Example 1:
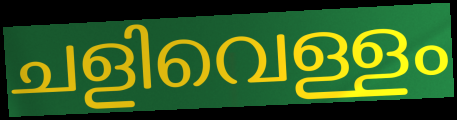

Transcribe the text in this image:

ചളിവെള്ളം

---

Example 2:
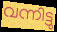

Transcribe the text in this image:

വന്നിട്ടു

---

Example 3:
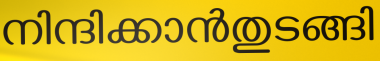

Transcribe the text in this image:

നിന്ദിക്കാൻതുടങ്ങി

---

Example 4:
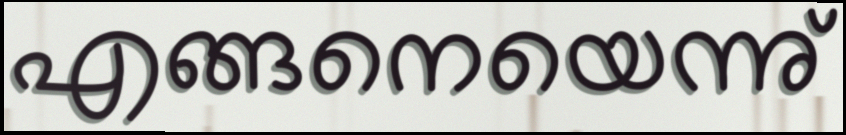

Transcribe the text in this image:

എങ്ങനെയെന്നു്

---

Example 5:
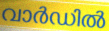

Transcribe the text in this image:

വാർഡിൽ